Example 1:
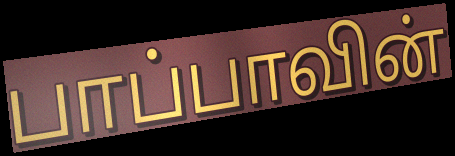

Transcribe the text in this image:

பாப்பாவின்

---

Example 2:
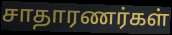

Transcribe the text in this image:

சாதாரணர்கள்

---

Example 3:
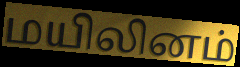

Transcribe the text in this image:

மயிலினம்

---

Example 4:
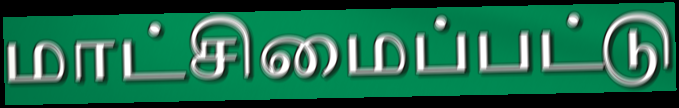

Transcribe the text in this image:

மாட்சிமைப்பட்டு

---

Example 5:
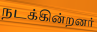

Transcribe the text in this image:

நடக்கின்றனர்